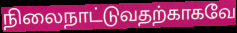
நிலைநாட்டுவதற்காகவே